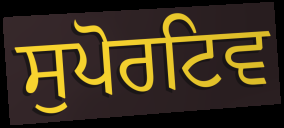
ਸੁਪੋਰਟਿਵ